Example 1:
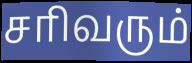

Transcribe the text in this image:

சரிவரும்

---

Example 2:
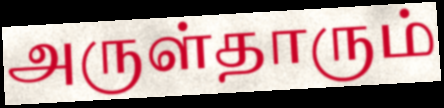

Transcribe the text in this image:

அருள்தாரும்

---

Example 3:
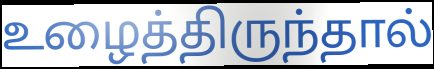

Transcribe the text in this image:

உழைத்திருந்தால்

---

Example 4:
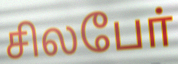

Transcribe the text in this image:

சிலபேர்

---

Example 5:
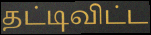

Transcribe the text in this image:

தட்டிவிட்ட